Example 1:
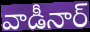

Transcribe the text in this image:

వాడీనార్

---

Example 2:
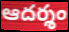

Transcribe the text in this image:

ఆదర్శం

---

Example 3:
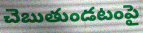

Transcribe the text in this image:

చెబుతుండటంపై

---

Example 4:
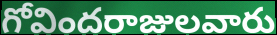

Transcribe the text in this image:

గోవిందరాజులవారు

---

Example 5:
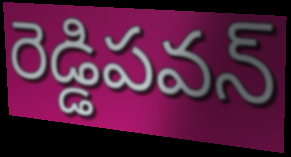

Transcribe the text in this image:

రెడ్డిపవన్